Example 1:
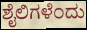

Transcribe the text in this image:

ಶೈಲಿಗಳೆಂದು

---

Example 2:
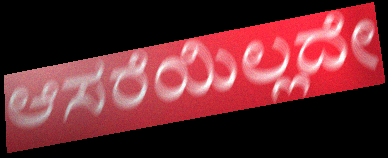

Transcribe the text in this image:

ಆಸರೆಯಿಲ್ಲದೇ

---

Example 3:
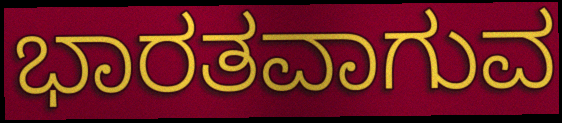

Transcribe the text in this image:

ಭಾರತವಾಗುವ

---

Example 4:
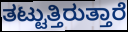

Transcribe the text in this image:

ತಟ್ಟುತ್ತಿರುತ್ತಾರೆ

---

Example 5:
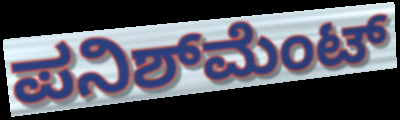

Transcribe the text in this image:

ಪನಿಶ್‌ಮೆಂಟ್